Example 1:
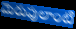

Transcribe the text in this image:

మెరుపులాంటి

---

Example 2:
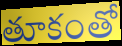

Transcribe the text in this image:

తూకంతో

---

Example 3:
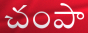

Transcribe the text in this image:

చంపా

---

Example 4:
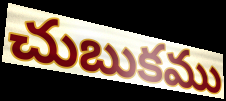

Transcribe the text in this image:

చుబుకము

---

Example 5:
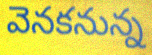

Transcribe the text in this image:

వెనకనున్న